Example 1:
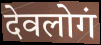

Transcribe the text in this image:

देवलोगं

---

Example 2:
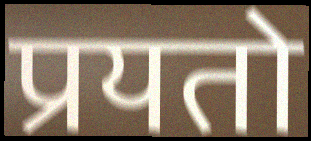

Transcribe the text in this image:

प्रयतो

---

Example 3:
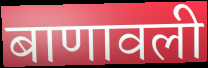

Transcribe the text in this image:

बाणावली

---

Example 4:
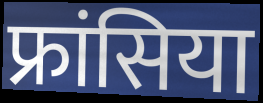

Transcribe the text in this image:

फ्रांसिया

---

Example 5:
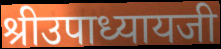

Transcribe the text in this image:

श्रीउपाध्यायजी